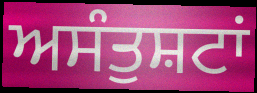
ਅਸੰਤੁਸ਼ਟਾਂ